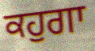
ਕਹੁਗਾ